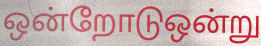
ஒன்றோடுஒன்று